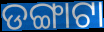
ଡଙ୍ଗାଟା